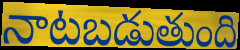
నాటబడుతుంది